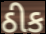
ઠીક